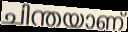
ചിന്തയാണ്